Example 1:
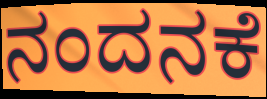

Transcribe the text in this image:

ನಂದನಕೆ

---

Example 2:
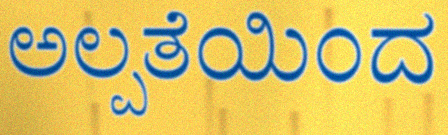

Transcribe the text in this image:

ಅಲ್ಪತೆಯಿಂದ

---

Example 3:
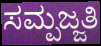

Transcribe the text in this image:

ಸಮ್ಪಜ್ಜತಿ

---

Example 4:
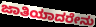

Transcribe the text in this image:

ಜಾತಿಯಾದರೇನು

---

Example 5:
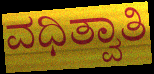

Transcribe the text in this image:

ವಧಿತ್ವಾತಿ